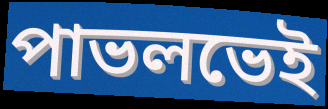
পাভলভেই